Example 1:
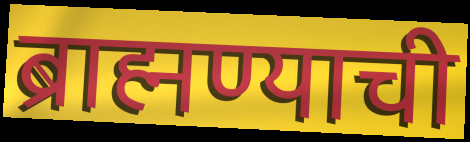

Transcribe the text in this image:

ब्राह्मण्याची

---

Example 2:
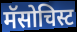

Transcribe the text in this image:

मॅसोचिस्ट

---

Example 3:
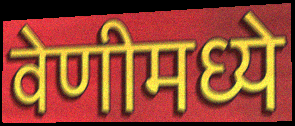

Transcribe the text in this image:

वेणीमध्ये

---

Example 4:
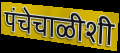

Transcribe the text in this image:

पंचेचाळीशी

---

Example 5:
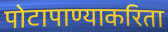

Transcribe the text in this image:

पोटापाण्याकरिता